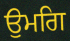
ਉਮਗਿ